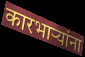
कारभाऱ्यांना